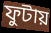
ফুটায়